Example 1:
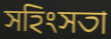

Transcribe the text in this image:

সহিংসতা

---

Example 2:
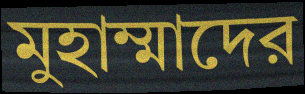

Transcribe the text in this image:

মুহাম্মাদের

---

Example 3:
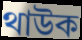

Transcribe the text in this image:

থাউক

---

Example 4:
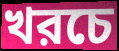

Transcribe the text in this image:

খরচে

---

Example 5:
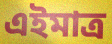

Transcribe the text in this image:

এইমাত্র